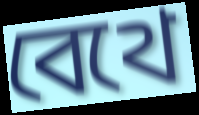
বেথে